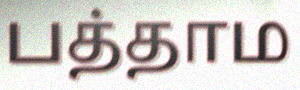
பத்தாம